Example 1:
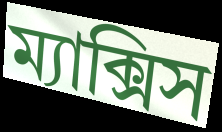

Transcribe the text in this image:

ম্যাক্সিস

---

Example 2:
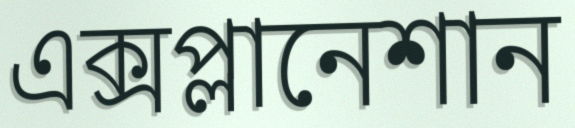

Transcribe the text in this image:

এক্সপ্লানেশান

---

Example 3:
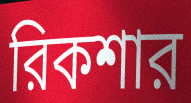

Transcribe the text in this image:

রিকশার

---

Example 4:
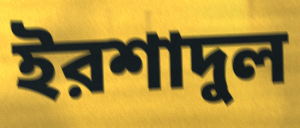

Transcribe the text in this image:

ইরশাদুল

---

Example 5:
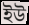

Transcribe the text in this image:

ইউ